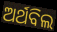
ଅର୍ଥବିଲ